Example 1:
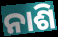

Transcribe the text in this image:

ନାଶି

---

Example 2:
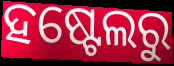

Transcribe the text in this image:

ହଷ୍ଟେଲରୁ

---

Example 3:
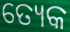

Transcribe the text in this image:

ତ୍ଯେକ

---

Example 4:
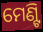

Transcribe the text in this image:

ମେଣ୍ଟି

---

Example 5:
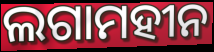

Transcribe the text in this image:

ଲଗାମହୀନ